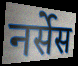
नर्सेस